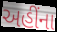
અહીંના